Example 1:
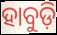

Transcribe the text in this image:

ହାବୁଡ଼ି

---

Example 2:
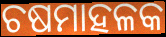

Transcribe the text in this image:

ଚଷମାହଳକ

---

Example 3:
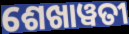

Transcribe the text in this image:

ଶେଖାୱତୀ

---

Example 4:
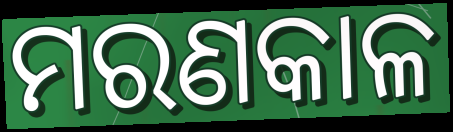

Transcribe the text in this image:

ମରଣକାଳ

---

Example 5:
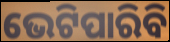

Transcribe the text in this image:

ଭେଟିପାରିବି